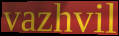
vazhvil